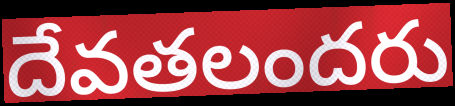
దేవతలందరు